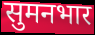
सुमनभार